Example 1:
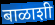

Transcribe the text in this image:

बाळाशी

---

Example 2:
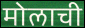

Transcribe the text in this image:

मोलाची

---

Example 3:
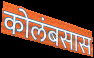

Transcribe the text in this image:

कोलंबसास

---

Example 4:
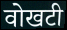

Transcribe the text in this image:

वोखटी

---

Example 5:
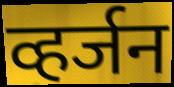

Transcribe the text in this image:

व्हर्जन